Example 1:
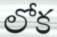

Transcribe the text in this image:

లోక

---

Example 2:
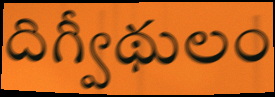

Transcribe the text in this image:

దిగ్వీథులం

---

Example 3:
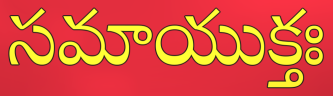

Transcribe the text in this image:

సమాయుక్తః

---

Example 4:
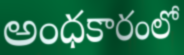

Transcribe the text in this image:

అంధకారంలో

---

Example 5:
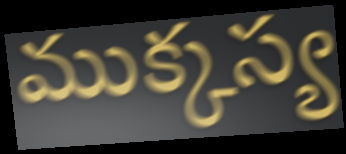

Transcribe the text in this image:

ముక్కస్య